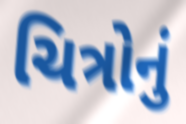
ચિત્રોનું